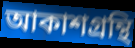
আকাশগ্রন্থি